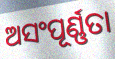
ଅସଂପୂର୍ଣ୍ଣତା